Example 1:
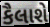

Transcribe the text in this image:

કૈલાશે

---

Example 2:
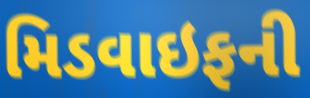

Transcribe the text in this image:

મિડવાઇફની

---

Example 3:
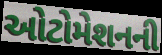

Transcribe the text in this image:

ઓટોમેશનની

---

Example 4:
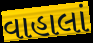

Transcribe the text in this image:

વાહાલાં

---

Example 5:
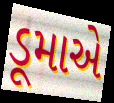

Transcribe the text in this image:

ડૂમાએ